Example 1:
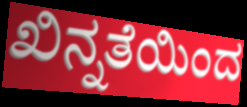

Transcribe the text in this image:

ಖಿನ್ನತೆಯಿಂದ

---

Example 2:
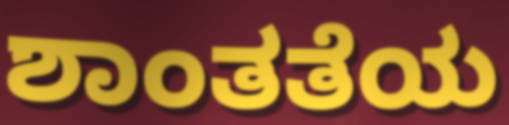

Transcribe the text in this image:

ಶಾಂತತೆಯ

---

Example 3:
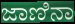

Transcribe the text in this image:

ಜಾಣಿನಾ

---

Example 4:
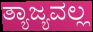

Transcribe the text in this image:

ತ್ಯಾಜ್ಯವಲ್ಲ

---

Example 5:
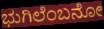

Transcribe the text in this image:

ಭುಗಿಲೆಂಬನೋ